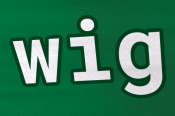
wig